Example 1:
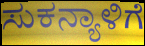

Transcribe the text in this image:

ಸುಕನ್ಯಾಳಿಗೆ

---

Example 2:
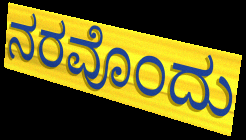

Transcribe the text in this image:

ನರವೊಂದು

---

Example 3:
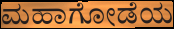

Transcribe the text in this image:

ಮಹಾಗೋಡೆಯ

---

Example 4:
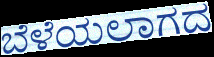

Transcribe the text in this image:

ಬೆಳೆಯಲಾಗದ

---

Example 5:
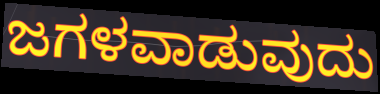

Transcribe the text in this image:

ಜಗಳವಾಡುವುದು